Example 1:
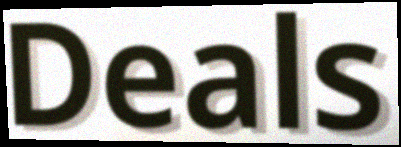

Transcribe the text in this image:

Deals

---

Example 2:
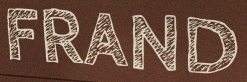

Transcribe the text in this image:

FRAND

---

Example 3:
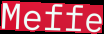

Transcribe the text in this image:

Meffe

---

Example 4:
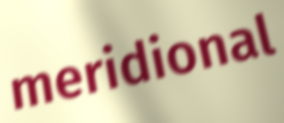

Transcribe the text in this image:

meridional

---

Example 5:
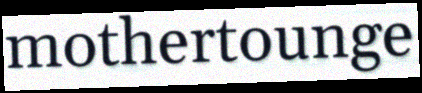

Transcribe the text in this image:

mothertounge